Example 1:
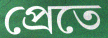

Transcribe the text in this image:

প্রেতে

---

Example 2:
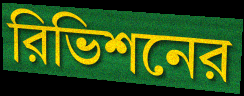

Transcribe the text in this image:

রিভিশনের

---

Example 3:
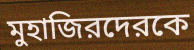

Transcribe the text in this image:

মুহাজিরদেরকে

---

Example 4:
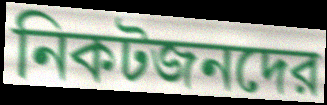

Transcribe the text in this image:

নিকটজনদের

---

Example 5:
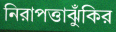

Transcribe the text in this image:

নিরাপত্তাঝুঁকির